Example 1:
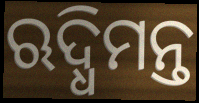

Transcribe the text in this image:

ଋଦ୍ଧିମନ୍ତ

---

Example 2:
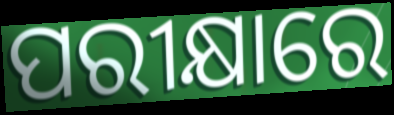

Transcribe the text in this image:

ପରୀକ୍ଷାରେ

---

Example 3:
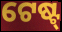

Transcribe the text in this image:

ଟେଷ୍ଟ୍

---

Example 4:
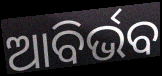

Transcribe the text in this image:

ଆବିର୍ଭବ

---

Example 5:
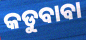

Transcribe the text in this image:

କଡୁବାବା